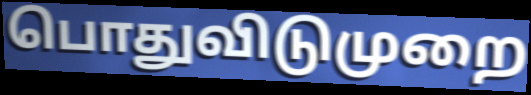
பொதுவிடுமுறை